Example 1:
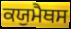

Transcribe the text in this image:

ਕਯੁਮੈਥਸ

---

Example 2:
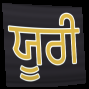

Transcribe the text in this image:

ਯੂਰੀ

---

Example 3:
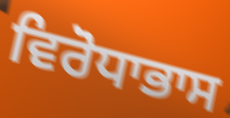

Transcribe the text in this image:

ਵਿਰੋਧਾਭਾਸ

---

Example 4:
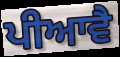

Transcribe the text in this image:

ਪੀਆਵੈ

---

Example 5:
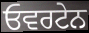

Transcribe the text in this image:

ਓਵਰਟੇਨ